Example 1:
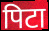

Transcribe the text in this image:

पिटा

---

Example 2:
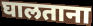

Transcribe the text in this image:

घालताना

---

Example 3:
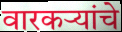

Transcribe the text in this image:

वारकऱ्यांचे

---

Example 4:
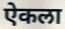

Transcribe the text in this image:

ऐकला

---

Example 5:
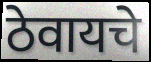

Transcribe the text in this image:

ठेवायचे